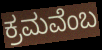
ಕ್ರಮವೆಂಬ